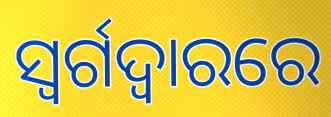
ସ୍ୱର୍ଗଦ୍ୱାରରେ